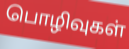
பொழிவுகள்